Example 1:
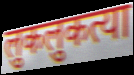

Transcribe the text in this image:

लुकलुकत्या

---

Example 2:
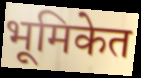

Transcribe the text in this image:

भूमिकेत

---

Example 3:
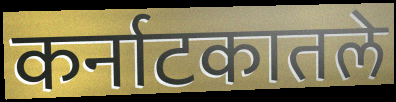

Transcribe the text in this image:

कर्नाटकातले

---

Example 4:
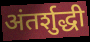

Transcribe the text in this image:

अंतर्शुद्धी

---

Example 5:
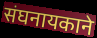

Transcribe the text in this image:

संघनायकाने